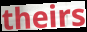
theirs